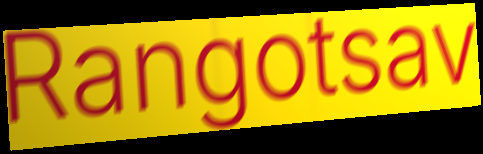
Rangotsav